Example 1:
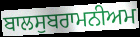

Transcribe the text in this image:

ਬਾਲਸੁਬਰਾਮਨੀਅਮ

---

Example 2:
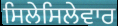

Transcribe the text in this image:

ਸਿਲੇਸਿਲੇਵਾਰ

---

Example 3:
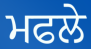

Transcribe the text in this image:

ਮਫਲੇ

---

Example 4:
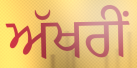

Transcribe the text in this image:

ਅੱਖਰੀਂ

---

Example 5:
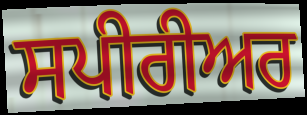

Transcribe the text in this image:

ਸਪੀਰੀਅਰ